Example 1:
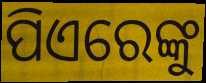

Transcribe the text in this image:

ପିଏରେଙ୍କୁ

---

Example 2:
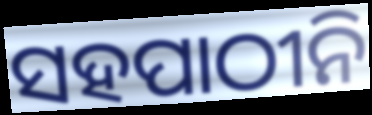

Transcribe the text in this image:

ସହପାଠୀନି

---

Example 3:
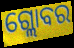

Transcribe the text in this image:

ଗ୍ଲୋବର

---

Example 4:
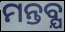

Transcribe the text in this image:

ମନ୍ତବ୍ଯ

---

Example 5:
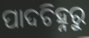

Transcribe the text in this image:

ପାଦଚିହ୍ନରୁ